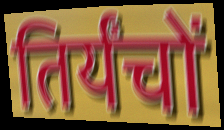
तिर्यंचों